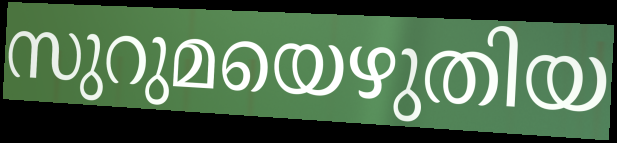
സുറുമയെഴുതിയ